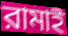
রামাই